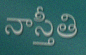
నాస్తీతి